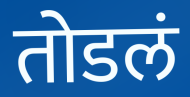
तोडलं